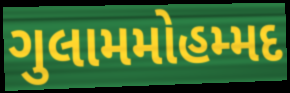
ગુલામમોહમ્મદ